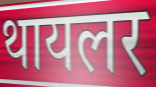
थायलर